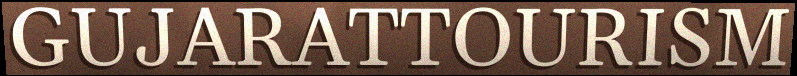
GUJARATTOURISM